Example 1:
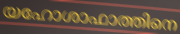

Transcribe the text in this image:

യഹോശാഫാത്തിനെ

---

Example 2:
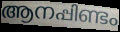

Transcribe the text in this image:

ആനപ്പിണ്ടം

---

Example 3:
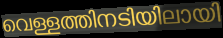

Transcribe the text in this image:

വെള്ളത്തിനടിയിലായി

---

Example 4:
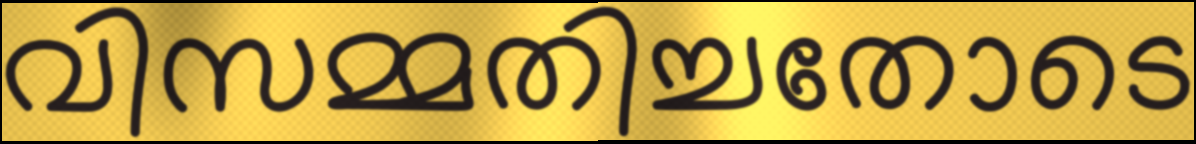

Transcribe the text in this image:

വിസമ്മതിച്ചതോടെ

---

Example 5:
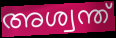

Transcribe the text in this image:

അശ്വന്ത്